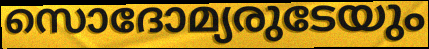
സൊദോമ്യരുടേയും